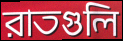
রাতগুলি